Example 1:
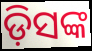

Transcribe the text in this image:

ଡ଼ିସଙ୍କ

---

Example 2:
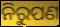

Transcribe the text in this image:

ନିରୁପଣ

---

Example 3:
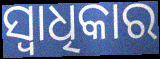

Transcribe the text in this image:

ସ୍ଵାଧିକାର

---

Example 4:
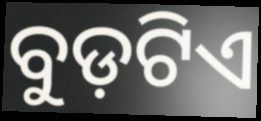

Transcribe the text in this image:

ବୁଡ଼ଟିଏ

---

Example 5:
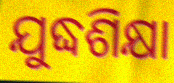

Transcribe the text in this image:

ଯୁଦ୍ଧଶିକ୍ଷା